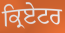
ਕ੍ਰਿਏਟਰ